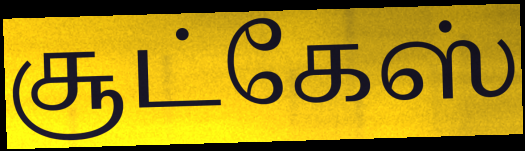
சூட்கேஸ்